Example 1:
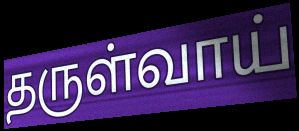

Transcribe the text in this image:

தருள்வாய்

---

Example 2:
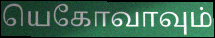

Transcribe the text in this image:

யெகோவாவும்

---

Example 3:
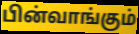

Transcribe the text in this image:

பின்வாங்கும்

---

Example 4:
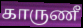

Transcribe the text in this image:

காருணீ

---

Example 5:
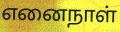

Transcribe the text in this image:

எனைநாள்